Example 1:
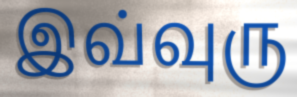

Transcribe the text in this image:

இவ்வுரு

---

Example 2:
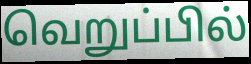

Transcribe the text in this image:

வெறுப்பில்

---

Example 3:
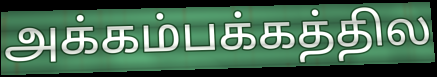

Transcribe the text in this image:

அக்கம்பக்கத்தில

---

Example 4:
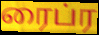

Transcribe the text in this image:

ரைப்ர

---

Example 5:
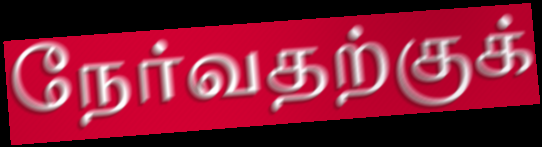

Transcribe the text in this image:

நேர்வதற்குக்